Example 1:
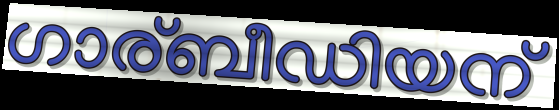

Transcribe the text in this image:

ഗാര്ബീഡിയന്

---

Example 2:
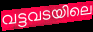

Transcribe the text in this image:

വട്ടവടയിലെ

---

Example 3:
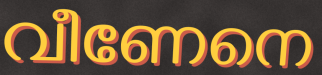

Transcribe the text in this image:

വീണേനെ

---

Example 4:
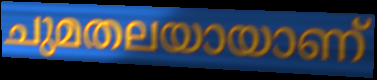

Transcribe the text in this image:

ചുമതലയായാണ്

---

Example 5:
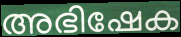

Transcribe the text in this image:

അഭിഷേക